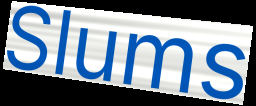
Slums